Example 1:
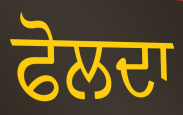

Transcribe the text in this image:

ਫੋਲਦਾ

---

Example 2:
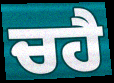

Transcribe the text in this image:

ਚਹੈ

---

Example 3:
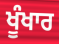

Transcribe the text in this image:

ਖੂੰਖਾਰ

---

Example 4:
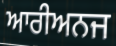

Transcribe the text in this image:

ਆਰੀਅਨਜ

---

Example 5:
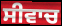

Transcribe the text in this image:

ਸੀਵਾਚ